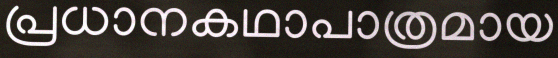
പ്രധാനകഥാപാത്രമായ